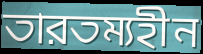
তারতম্যহীন